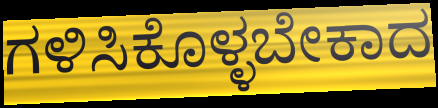
ಗಳಿಸಿಕೊಳ್ಳಬೇಕಾದ